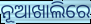
ନୂଆଖାଲିରେ